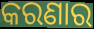
କରଣାର